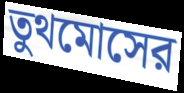
তুথমোসের